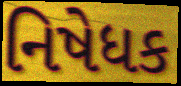
નિષેધક